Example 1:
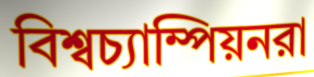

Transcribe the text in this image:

বিশ্বচ্যাম্পিয়নরা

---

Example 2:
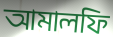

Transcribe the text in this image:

আমালফি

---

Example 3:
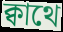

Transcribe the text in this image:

ক্বাথে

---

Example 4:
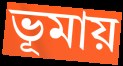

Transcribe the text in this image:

ভূমায়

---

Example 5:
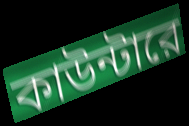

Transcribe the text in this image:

কাউন্টারে